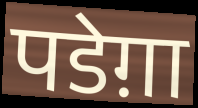
पडेग़ा